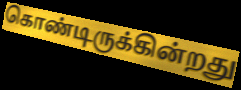
கொண்டிருக்கின்றது